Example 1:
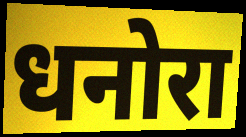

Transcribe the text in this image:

धनोरा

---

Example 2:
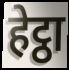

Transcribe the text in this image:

हेट्ठा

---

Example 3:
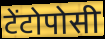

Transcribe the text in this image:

टेंटोपोसी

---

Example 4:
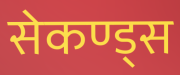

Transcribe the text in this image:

सेकण्ड्स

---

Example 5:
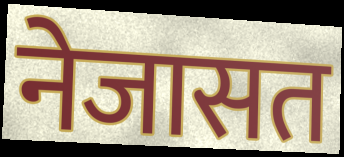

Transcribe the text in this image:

नेजासत